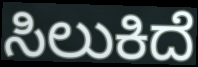
ಸಿಲುಕಿದೆ